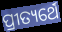
ପ୍ରୀତ୍ୟର୍ଥେ